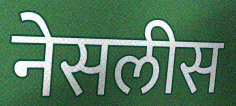
नेसलीस